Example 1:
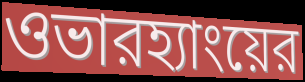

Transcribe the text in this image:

ওভারহ্যাংয়ের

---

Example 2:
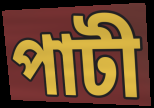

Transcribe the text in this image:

পাটী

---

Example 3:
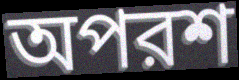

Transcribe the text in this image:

অপরশ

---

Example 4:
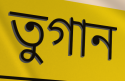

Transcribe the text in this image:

তুগান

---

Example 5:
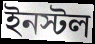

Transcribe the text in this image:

ইনস্টল